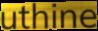
uthine